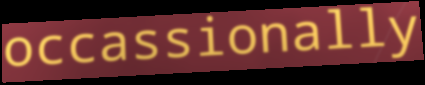
occassionally